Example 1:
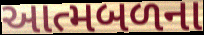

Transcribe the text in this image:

આત્મબળના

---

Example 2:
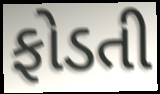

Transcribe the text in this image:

ફોડતી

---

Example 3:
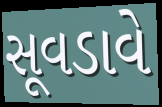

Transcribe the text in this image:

સૂવડાવે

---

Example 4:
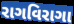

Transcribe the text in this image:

રાગવિરાગા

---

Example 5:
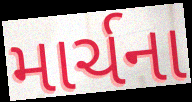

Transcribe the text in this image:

માર્ચના